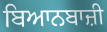
ਬਿਆਨਬਾਜ਼ੀ